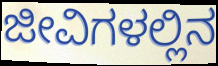
ಜೀವಿಗಳಲ್ಲಿನ